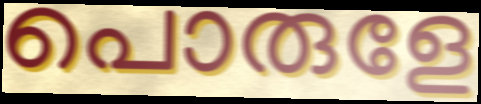
പൊരുളേ